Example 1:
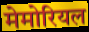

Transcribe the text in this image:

मेमोरियल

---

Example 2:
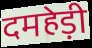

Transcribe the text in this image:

दमहेड़ी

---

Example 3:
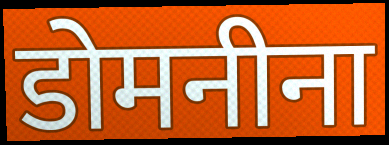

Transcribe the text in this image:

डोमनीना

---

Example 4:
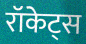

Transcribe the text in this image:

रॉकेट्स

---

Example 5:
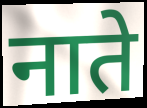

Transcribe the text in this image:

नाते